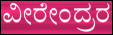
ವೀರೇಂದ್ರರ